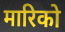
मारिको